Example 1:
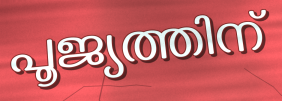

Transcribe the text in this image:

പൂജ്യത്തിന്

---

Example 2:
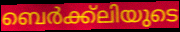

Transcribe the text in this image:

ബെർക്ക്ലിയുടെ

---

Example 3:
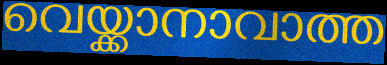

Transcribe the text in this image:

വെയ്ക്കാനാവാത്ത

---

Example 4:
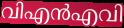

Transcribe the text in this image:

വിഎൻഎവി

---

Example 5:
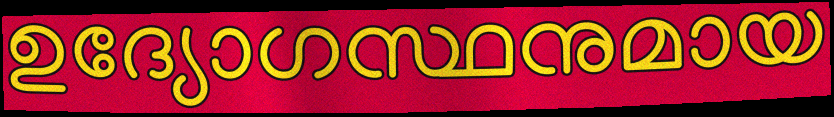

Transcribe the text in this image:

ഉദ്യോഗസ്ഥനുമായ